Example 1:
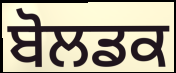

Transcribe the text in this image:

ਬੋਲਡਕ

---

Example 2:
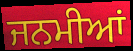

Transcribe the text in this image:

ਜਨਮੀਆਂ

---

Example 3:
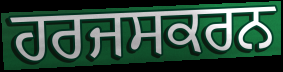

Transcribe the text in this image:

ਹਰਜਸਕਰਨ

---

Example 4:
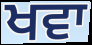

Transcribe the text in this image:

ਖਵਾ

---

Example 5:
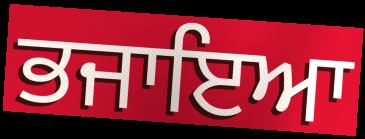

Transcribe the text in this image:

ਭਜਾਇਆ